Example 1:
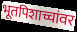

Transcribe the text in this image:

भूतपिशाच्चांवर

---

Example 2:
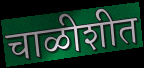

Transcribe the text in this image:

चाळीशीत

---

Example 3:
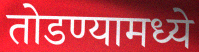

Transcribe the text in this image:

तोडण्यामध्ये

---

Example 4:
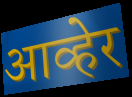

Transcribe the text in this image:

आव्हेर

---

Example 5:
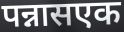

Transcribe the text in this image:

पन्नासएक